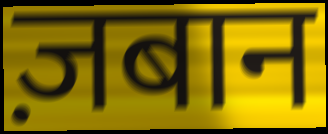
ज़बान